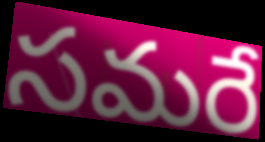
సమరే